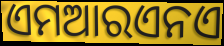
ଏମଆରଏନଏ